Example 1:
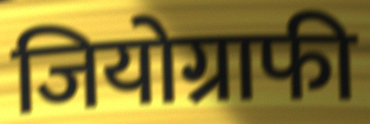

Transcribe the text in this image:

जियोग्राफी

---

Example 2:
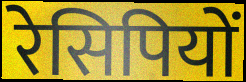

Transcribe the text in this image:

रेसिपियों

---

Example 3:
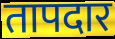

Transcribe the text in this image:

तापदार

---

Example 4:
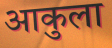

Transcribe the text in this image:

आकुला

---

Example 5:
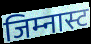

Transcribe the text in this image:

जिम्नास्ट